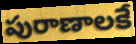
పురాణాలకే